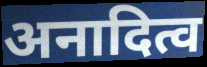
अनादित्व